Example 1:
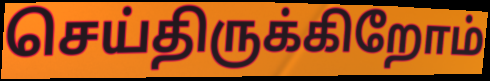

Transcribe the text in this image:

செய்திருக்கிறோம்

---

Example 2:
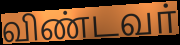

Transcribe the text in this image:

விண்டவர்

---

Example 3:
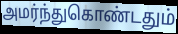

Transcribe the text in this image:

அமர்ந்துகொண்டதும்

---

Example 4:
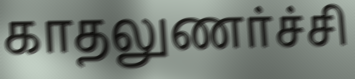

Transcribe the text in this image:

காதலுணர்ச்சி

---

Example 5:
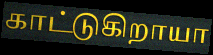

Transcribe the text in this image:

காட்டுகிறாயா